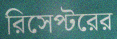
রিসেপ্টরের